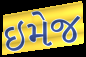
ઇમેજ